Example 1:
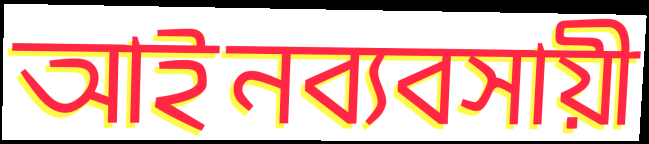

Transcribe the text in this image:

আইনব্যবসায়ী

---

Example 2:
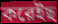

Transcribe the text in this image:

করেইছ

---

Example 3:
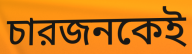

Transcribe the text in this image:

চারজনকেই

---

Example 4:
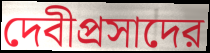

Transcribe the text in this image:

দেবীপ্রসাদের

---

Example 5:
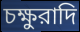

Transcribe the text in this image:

চক্ষুরাদি